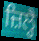
ਜ਼ਿਲ੍ਹੈ